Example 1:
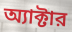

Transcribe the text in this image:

অ্যাক্টার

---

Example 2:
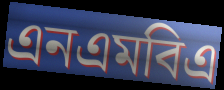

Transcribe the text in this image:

এনএমবিএ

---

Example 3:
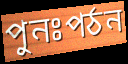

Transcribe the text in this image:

পুনঃপঠন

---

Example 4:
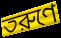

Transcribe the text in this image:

তরুণে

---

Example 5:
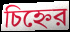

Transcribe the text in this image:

চিহ্নের